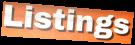
Listings